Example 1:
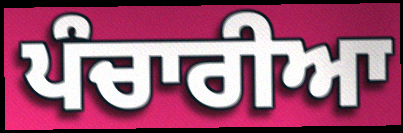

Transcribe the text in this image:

ਪੰਚਾਰੀਆ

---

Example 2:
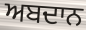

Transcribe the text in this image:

ਅਬਦਾਨ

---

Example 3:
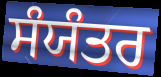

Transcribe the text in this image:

ਸੰਯੰਤਰ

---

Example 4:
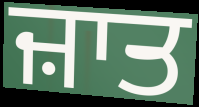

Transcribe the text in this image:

ਜ਼ਾਤ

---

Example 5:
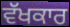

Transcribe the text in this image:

ਵੱਖਕਾਰ